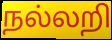
நல்லறி